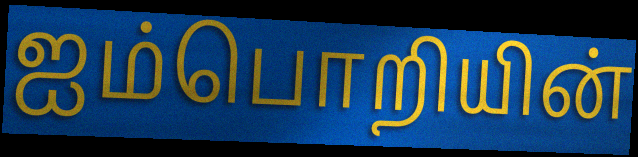
ஐம்பொறியின்